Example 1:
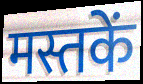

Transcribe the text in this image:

मस्तकें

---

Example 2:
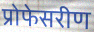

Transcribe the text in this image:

प्रोफेसरीण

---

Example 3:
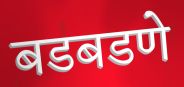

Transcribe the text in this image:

बडबडणे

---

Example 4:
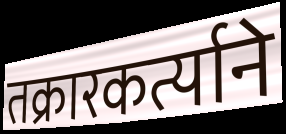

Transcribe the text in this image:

तक्रारकर्त्याने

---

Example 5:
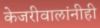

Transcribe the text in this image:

केजरीवालांनीही